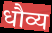
धौव्य